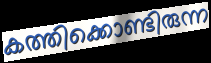
കത്തിക്കൊണ്ടിരുന്ന